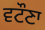
ਵਟੌਣਾ